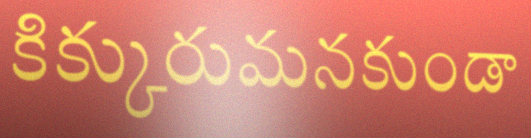
కిక్కురుమనకుండా